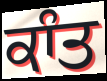
ਕਾੰਤ